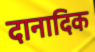
दानादिक